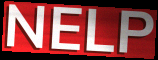
NELP